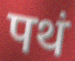
पथं